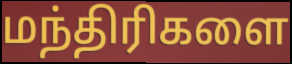
மந்திரிகளை